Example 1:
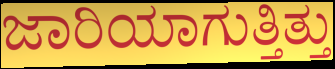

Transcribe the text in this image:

ಜಾರಿಯಾಗುತ್ತಿತ್ತು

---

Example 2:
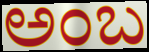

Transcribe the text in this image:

ಅಂಬ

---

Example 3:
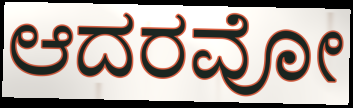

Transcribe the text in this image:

ಆದರವೋ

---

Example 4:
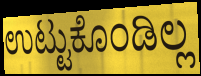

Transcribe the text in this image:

ಉಟ್ಟುಕೊಂಡಿಲ್ಲ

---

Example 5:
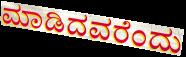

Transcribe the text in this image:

ಮಾಡಿದವರೆಂದು